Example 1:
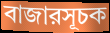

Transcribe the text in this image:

বাজারসূচক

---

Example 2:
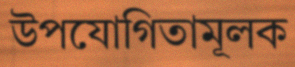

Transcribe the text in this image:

উপযোগিতামূলক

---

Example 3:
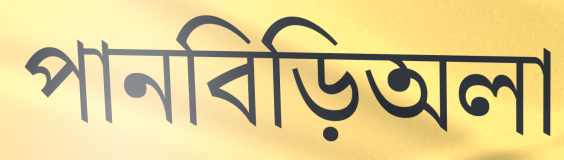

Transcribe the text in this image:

পানবিড়িঅলা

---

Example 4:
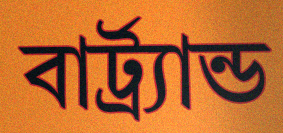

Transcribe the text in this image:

বার্ট্র্যান্ড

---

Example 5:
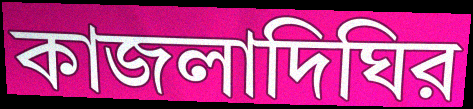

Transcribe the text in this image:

কাজলাদিঘির